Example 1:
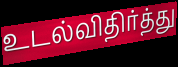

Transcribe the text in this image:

உடல்விதிர்த்து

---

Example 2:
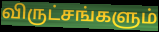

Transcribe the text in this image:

விருட்சங்களும்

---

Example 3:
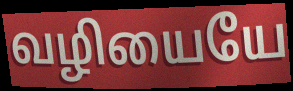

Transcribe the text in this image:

வழியையே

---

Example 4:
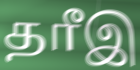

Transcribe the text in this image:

தரீஇ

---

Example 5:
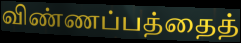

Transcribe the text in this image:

விண்ணப்பத்தைத்